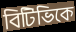
বিটিভিকে